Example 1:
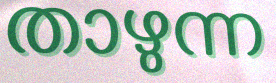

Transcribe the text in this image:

താഴുന്ന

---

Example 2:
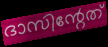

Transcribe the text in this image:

ദാസിന്റേത്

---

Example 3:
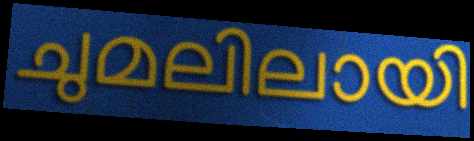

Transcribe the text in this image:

ചുമലിലായി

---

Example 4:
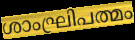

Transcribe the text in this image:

ശാംഘ്രിപത്മം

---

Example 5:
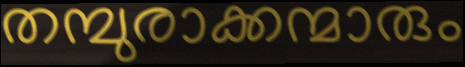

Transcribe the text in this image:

തമ്പുരാക്കന്മാരും